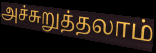
அச்சுறுத்தலாம்